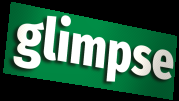
glimpse